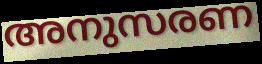
അനുസരണ